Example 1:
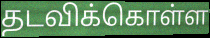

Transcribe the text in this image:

தடவிக்கொள்ள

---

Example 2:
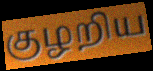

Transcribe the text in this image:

குழறிய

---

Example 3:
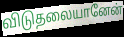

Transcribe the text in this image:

விடுதலையானேன்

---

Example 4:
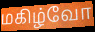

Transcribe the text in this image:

மகிழ்வோ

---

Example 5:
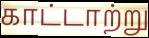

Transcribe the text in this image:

காட்டாற்று